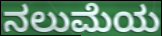
ನಲುಮೆಯ